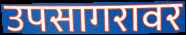
उपसागरावर